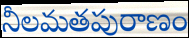
నీలమతపురాణం